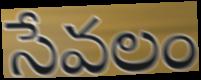
సేవలం